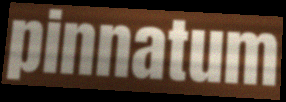
pinnatum